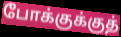
போக்குக்குத்